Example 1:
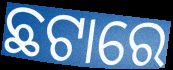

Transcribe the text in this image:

ଛଟାରେ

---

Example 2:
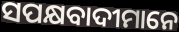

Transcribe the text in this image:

ସପକ୍ଷବାଦୀମାନେ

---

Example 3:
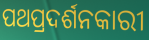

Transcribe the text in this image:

ପଥପ୍ରଦର୍ଶନକାରୀ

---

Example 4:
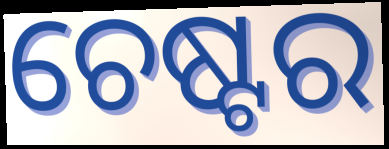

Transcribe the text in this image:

ଚେଷ୍ଟର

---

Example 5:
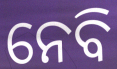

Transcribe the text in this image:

ନେବି